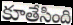
కూతేసింది